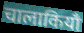
चालाकियाँ